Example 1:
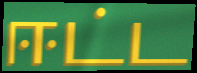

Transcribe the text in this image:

ஈட்ட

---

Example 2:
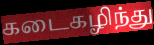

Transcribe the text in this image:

கடைகழிந்து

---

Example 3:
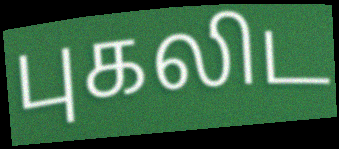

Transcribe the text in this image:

புகலிட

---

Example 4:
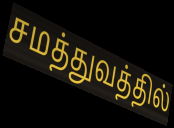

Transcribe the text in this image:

சமத்துவத்தில்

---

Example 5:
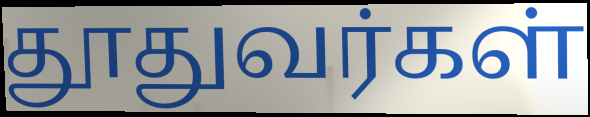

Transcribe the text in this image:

தூதுவர்கள்